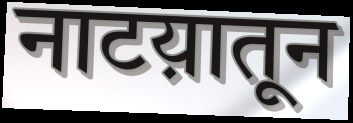
नाटय़ातून